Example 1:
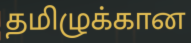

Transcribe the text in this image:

தமிழுக்கான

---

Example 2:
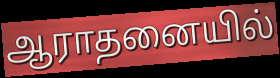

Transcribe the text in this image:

ஆராதனையில்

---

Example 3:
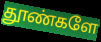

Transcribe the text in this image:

தூண்களே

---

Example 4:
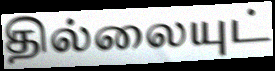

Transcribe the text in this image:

தில்லையுட்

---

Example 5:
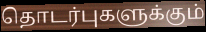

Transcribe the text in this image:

தொடர்புகளுக்கும்